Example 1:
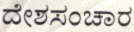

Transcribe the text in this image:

ದೇಶಸಂಚಾರ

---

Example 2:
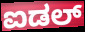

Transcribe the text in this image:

ಐಡಲ್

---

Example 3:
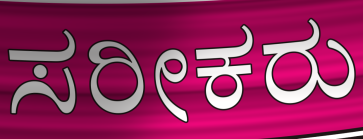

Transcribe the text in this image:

ಸರೀಕರು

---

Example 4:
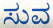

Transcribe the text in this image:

ಸುವ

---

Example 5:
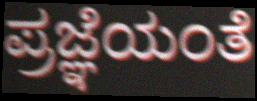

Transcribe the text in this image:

ಪ್ರಜ್ಞೆಯಂತೆ